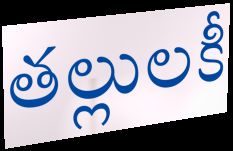
తల్లులకీ